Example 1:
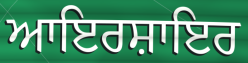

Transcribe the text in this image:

ਆਇਰਸ਼ਾਇਰ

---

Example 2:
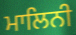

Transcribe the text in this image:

ਮਾਲਿਨੀ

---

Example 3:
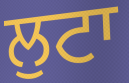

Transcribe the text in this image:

ਲੁਟਾ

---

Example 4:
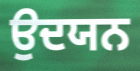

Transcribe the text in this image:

ਉਦਯਨ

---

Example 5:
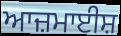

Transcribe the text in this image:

ਆਜ਼ਮਾਈਸ਼